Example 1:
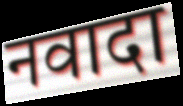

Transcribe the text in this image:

नवादा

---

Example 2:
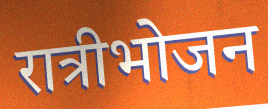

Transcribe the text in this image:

रात्रीभोजन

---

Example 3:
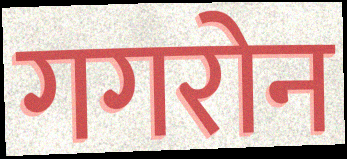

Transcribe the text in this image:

गगरोन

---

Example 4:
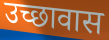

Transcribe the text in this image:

उच्छावास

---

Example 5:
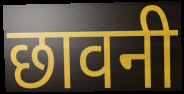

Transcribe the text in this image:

छावनी